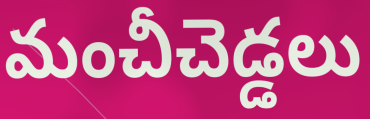
మంచీచెడ్డలు